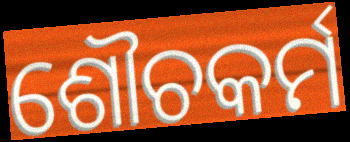
ଶୌଚକର୍ମ